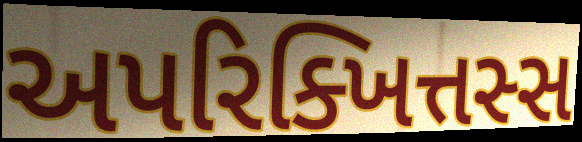
અપરિક્ખિત્તસ્સ